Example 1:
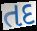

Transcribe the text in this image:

તદ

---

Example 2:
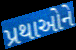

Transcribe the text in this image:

પ્રથાઓને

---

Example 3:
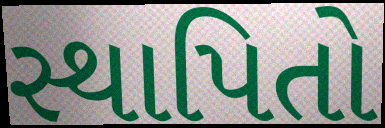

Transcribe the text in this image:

સ્થાપિતો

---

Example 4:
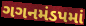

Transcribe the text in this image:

ગગનમંડપમાં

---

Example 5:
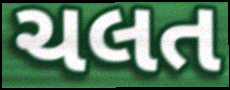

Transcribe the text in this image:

ચલત